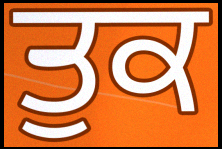
ਤੁਕ